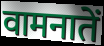
वामनातें